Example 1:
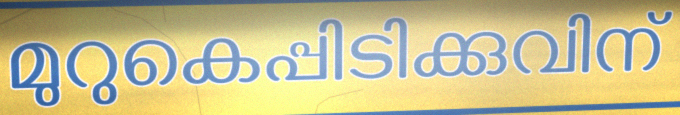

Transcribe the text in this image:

മുറുകെപ്പിടിക്കുവിന്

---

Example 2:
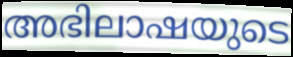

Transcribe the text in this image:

അഭിലാഷയുടെ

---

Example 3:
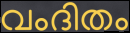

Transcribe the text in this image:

വംദിതം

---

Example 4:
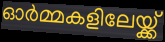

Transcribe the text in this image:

ഓർമ്മകളിലേയ്ക്ക്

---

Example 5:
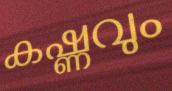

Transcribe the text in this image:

കഷ്ണവും